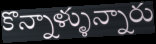
కొన్నాళ్ళున్నారు